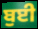
ਬੁਈ